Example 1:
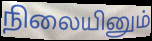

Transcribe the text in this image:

நிலையினும்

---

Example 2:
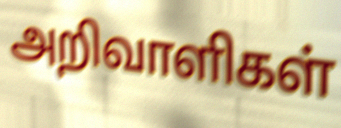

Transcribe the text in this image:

அறிவாளிகள்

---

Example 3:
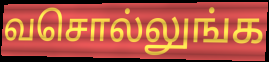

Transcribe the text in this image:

வசொல்லுங்க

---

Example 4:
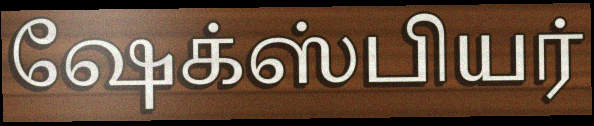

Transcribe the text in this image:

ஷேக்ஸ்பியர்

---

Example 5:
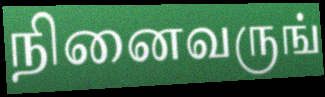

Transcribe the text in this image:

நினைவருங்